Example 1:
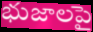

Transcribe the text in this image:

భుజాలపై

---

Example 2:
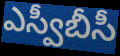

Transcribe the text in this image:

ఎస్వీబీసీ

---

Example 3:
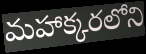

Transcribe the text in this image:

మహాక్కరలోని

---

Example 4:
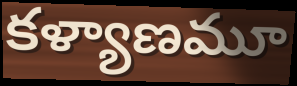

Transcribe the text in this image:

కళ్యాణమూ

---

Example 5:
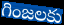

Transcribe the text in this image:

గింజలకు